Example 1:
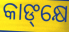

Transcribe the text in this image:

କାଙ୍‌କ୍ଷେ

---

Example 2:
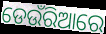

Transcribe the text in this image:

ଡେଉଁରିଆରେ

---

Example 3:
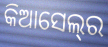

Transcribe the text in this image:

କିଆସେଲ୍‌ର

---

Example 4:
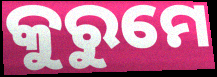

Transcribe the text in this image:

କୁରୁମେ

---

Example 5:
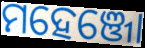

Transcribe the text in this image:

ମହେଞ୍ଜୋ